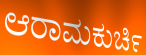
ಆರಾಮಕುರ್ಚಿ